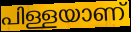
പിള്ളയാണ്